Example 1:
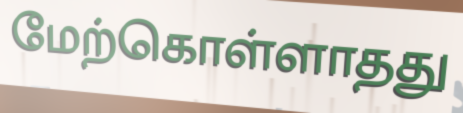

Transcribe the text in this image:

மேற்கொள்ளாதது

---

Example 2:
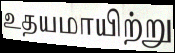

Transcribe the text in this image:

உதயமாயிற்று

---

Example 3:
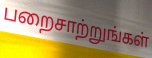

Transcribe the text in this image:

பறைசாற்றுங்கள்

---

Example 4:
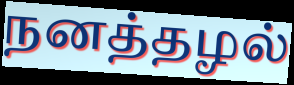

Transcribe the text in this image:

நனத்தழல்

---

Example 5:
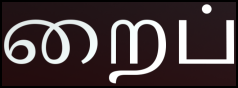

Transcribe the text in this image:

றைப்